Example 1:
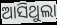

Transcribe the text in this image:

ଆସିଥୁଲା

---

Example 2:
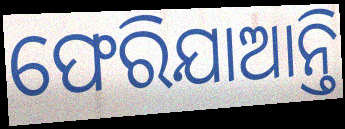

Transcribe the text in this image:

ଫେରିଯାଆନ୍ତି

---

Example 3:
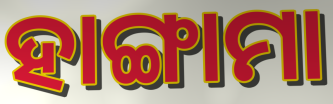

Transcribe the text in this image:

ହାଙ୍ଗାମା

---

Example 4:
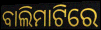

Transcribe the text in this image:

ବାଲିମାଟିରେ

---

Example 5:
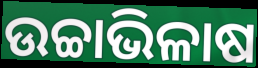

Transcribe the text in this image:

ଉଚ୍ଚାଭିଳାଷ